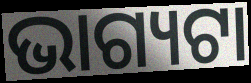
ଭାଗ୍ୟଟା